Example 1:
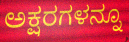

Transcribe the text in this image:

ಅಕ್ಷರಗಳನ್ನೂ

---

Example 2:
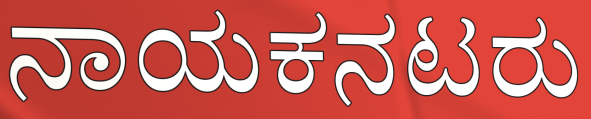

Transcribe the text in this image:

ನಾಯಕನಟರು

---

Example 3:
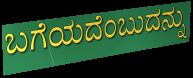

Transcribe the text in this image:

ಬಗೆಯದೆಂಬುದನ್ನು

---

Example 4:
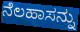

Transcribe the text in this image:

ನೆಲಹಾಸನ್ನು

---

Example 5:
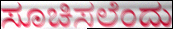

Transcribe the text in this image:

ಸೂಚಿಸಲೆಂದು